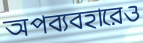
অপব্যবহারেও